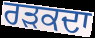
ਰੜਕਦਾ